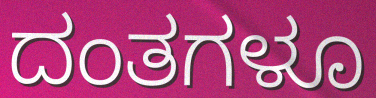
ದಂತಗಳೂ